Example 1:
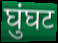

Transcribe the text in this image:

घुंघट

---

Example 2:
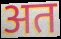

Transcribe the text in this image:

अत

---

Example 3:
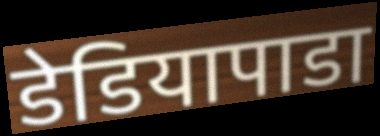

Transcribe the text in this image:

डेडियापाडा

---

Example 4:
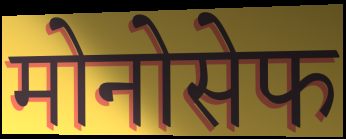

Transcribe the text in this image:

मोनोसेफ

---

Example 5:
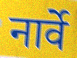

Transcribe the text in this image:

नार्वे